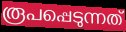
രൂപപ്പെടുന്നത്